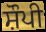
ਸ਼ੌਪੀ